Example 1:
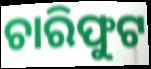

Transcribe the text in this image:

ଚାରିଫୁଟ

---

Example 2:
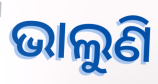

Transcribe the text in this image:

ଭାଲୁଣି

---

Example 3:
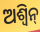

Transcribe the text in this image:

ଅଶ୍ବିନ୍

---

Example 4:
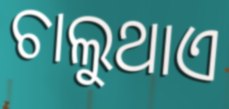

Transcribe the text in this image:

ଚାଲୁଥାଏ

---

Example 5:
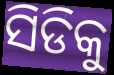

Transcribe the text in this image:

ସିଡିକୁ